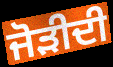
ਜੋੜੀਦੀ